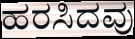
ಹರಸಿದವು